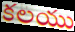
కలయు